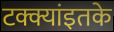
टक्क्यांइतके